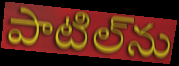
పాటిల్‌ను